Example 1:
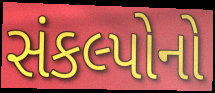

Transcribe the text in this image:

સંકલ્પોનો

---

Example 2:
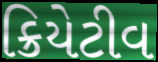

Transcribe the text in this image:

ક્રિયેટીવ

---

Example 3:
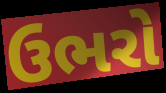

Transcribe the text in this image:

ઉભરો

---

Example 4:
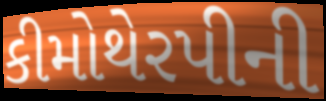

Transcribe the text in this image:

કીમોથેરપીની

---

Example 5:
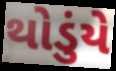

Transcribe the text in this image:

થોડુંયે